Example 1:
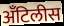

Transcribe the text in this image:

अँटिलीस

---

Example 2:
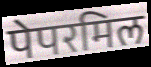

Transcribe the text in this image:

पेपरमिल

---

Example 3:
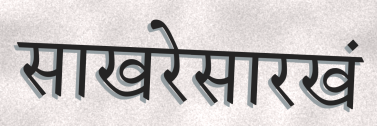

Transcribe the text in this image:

साखरेसारखं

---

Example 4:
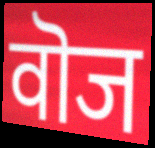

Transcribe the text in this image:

वॊज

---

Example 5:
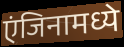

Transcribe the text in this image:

एंजिनामध्ये